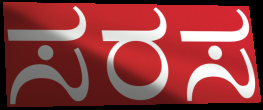
ಸರಸ